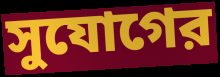
সুযোগের